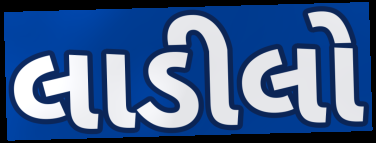
લાડીલો